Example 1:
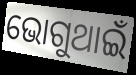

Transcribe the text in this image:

ଭୋଗୁଥାଇଁ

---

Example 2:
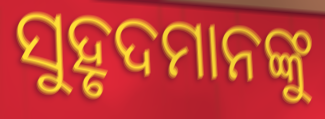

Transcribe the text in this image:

ସୁହୃଦମାନଙ୍କୁ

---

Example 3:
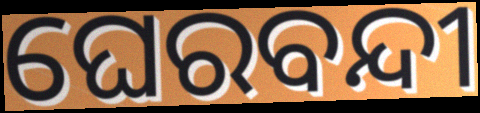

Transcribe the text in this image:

ଘେରବନ୍ଦୀ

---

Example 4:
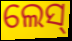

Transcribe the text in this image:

ଲେସ୍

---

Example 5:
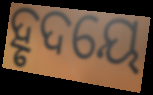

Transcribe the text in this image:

ହୃଦୟେ